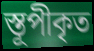
স্তূপীকৃত